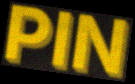
PIN